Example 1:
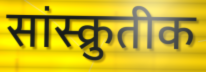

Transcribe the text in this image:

सांस्क्रुतीक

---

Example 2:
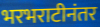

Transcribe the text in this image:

भरभराटीनंतर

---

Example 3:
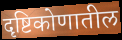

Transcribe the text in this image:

दृष्टिकोणातील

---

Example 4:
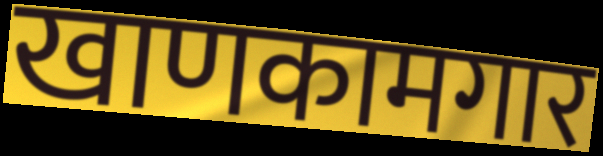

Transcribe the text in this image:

खाणकामगार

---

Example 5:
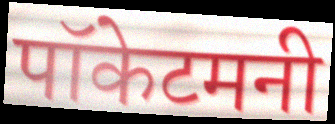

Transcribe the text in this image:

पॉकेटमनी